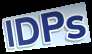
IDPs